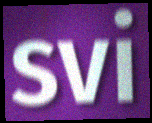
svi